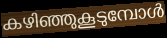
കഴിഞ്ഞുകൂടുമ്പോൾ